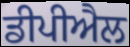
ਡੀਪੀਐਲ